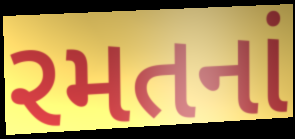
રમતનાં